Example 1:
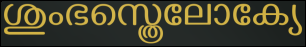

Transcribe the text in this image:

ശുംഭസ്ത്രെലോക്യേ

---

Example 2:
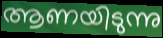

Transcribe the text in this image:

ആണയിടുന്നു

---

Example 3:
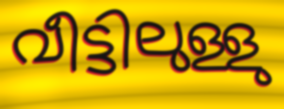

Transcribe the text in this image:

വീട്ടിലുള്ളു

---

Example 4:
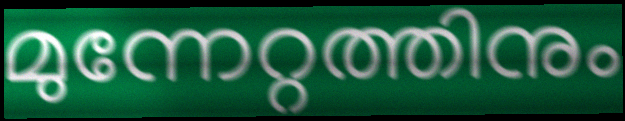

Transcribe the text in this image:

മുന്നേറ്റത്തിനും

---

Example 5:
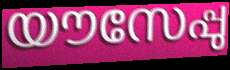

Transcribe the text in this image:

യൗസേപ്പു